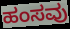
ಹಂಸವು